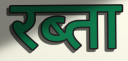
रब्ता